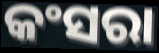
କଂସରା